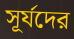
সূর্যদের